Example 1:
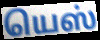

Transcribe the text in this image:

யெஸ்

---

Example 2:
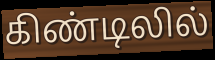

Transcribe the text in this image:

கிண்டிலில்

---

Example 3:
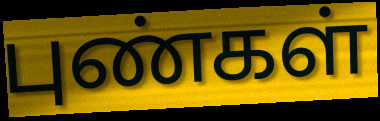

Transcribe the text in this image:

புண்கள்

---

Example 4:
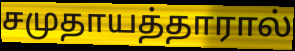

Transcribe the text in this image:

சமுதாயத்தாரால்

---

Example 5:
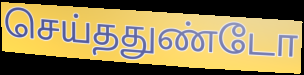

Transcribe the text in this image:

செய்ததுண்டோ